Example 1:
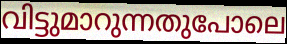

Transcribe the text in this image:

വിട്ടുമാറുന്നതുപോലെ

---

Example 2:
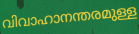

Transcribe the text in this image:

വിവാഹാനന്തരമുള്ള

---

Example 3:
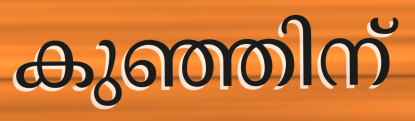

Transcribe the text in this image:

കുഞ്ഞിന്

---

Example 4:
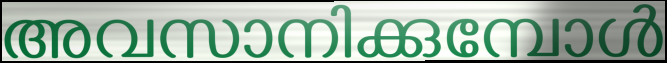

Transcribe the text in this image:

അവസാനിക്കുമ്പോൾ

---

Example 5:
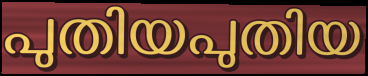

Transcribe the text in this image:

പുതിയപുതിയ